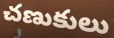
చణుకులు